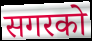
सगरको